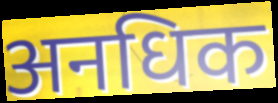
अनधिक